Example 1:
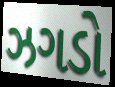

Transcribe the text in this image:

ઝગડો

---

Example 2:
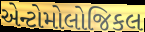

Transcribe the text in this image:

એન્ટોમોલોજિકલ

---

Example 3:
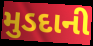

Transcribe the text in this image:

મુડદાની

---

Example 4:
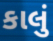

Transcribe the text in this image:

કાલું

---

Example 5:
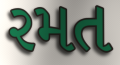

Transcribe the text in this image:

રમત